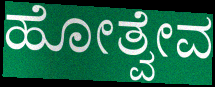
ಹೋತ್ವೇವ